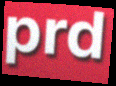
prd